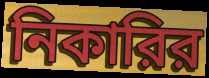
নিকারির